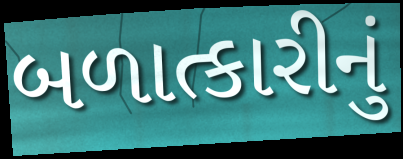
બળાત્કારીનું